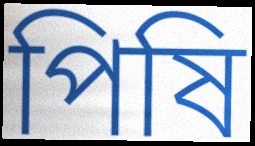
পিষি